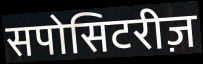
सपोसिटरीज़